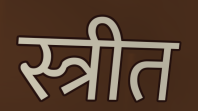
स्त्रीत